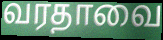
வரதாவை